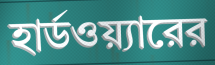
হার্ডওয়্যারের